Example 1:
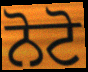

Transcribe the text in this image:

ਨੋਟੋ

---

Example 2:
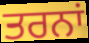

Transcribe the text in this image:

ਤਰਨਾਂ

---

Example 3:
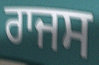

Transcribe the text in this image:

ਰਾਜਸ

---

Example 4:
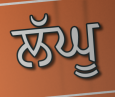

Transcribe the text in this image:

ਲੱਘੂ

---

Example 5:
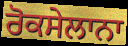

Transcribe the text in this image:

ਰੋਕਸੇਲਾਨਾ